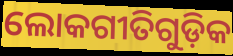
ଲୋକଗୀତିଗୁଡ଼ିକ